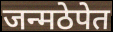
जन्मठेपेत